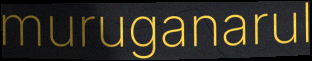
muruganarul